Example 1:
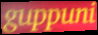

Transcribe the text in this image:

guppuni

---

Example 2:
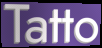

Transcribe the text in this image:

Tatto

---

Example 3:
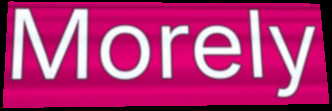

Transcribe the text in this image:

Morely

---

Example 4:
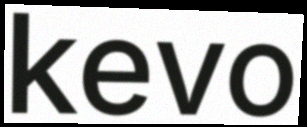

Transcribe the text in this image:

kevo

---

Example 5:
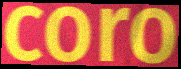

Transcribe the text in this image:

coro